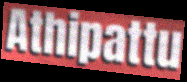
Athipattu